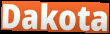
Dakota